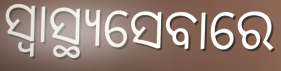
ସ୍ୱାସ୍ଥ୍ୟସେବାରେ